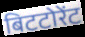
बिटटोरेंट